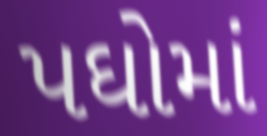
પઘોમાં